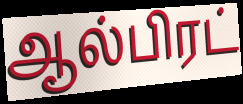
ஆல்பிரட்